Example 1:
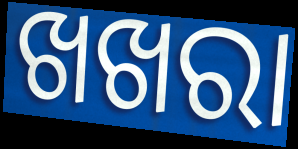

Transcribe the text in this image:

ଖଖରା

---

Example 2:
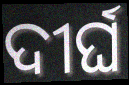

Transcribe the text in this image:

ଦୀର୍ଘ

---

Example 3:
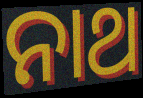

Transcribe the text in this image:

ନାଥ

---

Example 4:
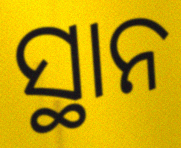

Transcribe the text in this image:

ସ୍ଥାନ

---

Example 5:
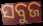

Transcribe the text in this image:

ସବୁଜ